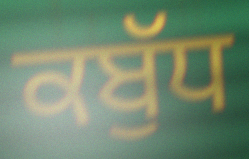
ਕਬੁੱਧ